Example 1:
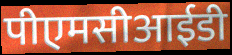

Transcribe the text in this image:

पीएमसीआईडी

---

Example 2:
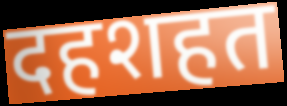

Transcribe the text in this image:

दहशहत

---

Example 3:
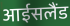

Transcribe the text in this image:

आईसलैंड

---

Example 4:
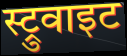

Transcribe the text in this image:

स्ट्रुवाइट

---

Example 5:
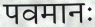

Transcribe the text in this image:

पवमानः